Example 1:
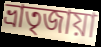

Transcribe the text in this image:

ভ্রাতৃজায়া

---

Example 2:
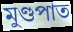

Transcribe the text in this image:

মুণ্ডপাত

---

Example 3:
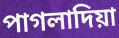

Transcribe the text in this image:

পাগলাদিয়া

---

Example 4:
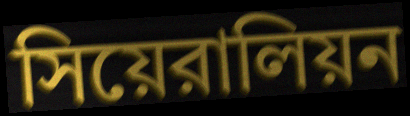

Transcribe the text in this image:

সিয়েরালিয়ন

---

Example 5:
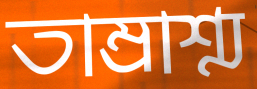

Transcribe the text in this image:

তাম্রাশ্ম